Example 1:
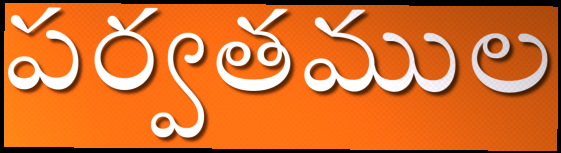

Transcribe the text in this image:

పర్వతముల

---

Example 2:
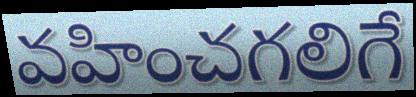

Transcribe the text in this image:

వహించగలిగే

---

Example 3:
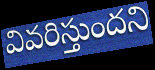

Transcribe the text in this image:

వివరిస్తుందని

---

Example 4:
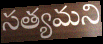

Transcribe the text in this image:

సత్యమని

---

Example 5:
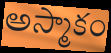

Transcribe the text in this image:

అస్మాకం